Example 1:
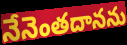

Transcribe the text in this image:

నేనెంతదానను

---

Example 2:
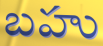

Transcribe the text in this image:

బహు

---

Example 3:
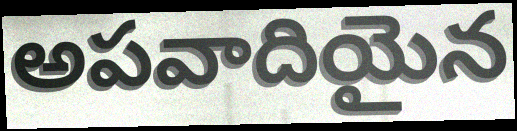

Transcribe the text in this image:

అపవాదియైన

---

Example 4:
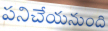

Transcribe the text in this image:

పనిచేయనుంది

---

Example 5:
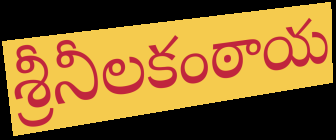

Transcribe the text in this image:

శ్రీనీలకంఠాయ